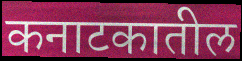
कनाटकातील